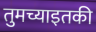
तुमच्याइतकी